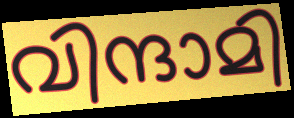
വിന്ദാമി